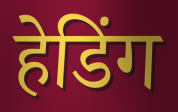
हेडिंग